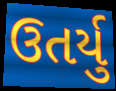
ઉતર્યુ